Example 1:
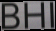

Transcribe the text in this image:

BHI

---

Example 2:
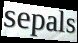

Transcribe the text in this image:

sepals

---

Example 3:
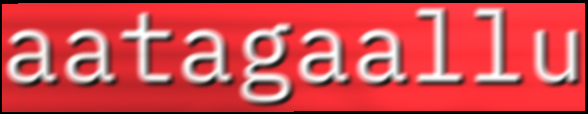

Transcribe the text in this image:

aatagaallu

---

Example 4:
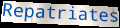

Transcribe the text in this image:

Repatriates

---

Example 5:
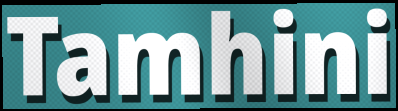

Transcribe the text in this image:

Tamhini